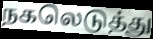
நகலெடுத்து